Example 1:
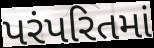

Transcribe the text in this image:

પરંપરિતમાં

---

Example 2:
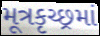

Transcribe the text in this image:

મૂત્રકૃચ્છ્રમાં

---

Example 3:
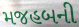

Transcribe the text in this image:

મજહબની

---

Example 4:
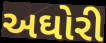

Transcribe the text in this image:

અઘોરી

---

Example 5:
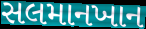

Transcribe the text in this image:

સલમાનખાન